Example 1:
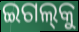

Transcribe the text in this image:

ଇଗଲ୍‌କୁ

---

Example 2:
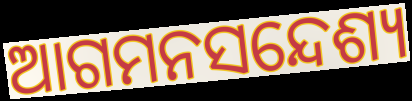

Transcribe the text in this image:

ଆଗମନସନ୍ଦେଶ୍ୟ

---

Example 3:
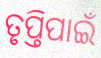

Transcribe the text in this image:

ତୃପ୍ତିପାଇଁ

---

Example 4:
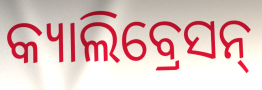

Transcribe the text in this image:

କ୍ୟାଲିବ୍ରେସନ୍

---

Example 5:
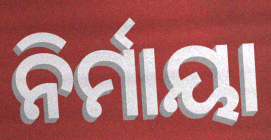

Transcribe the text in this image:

ନିର୍ମାୟା